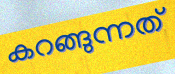
കറങ്ങുന്നത്